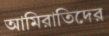
আমিরাতিদের